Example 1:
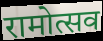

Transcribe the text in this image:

रामोत्सव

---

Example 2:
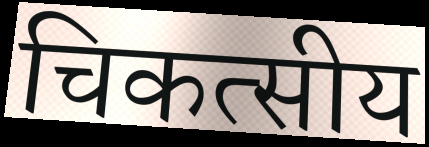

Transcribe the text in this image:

चिकत्सीय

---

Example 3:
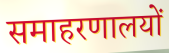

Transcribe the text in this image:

समाहरणालयों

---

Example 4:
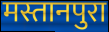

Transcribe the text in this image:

मस्तानपुरा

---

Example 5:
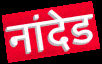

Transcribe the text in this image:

नांदेड